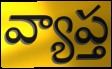
వ్యాప్త